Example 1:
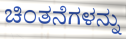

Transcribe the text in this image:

ಚಿಂತನೆಗಳನ್ನು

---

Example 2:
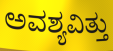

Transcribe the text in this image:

ಅವಶ್ಯವಿತ್ತು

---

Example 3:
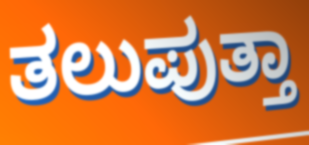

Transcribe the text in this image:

ತಲುಪುತ್ತಾ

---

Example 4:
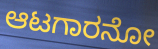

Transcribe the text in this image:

ಆಟಗಾರನೋ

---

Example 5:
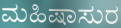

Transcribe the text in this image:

ಮಹಿಷಾಸುರ